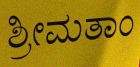
ಶ್ರೀಮತಾಂ